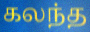
கலந்த